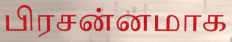
பிரசன்னமாக